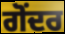
ਗੋਂਦਰ